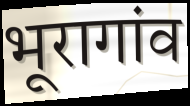
भूरागांव